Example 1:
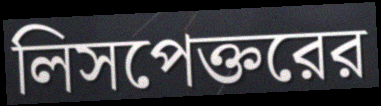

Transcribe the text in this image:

লিসপেক্তরের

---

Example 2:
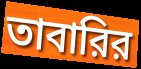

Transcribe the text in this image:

তাবারির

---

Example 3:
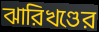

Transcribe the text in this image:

ঝারিখণ্ডের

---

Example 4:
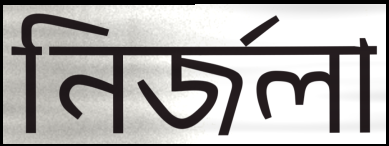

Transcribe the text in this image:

নির্জলা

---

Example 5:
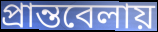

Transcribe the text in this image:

প্রান্তবেলায়